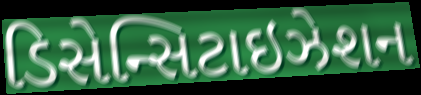
ડિસેન્સિટાઇઝેશન